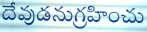
దేవుడనుగ్రహించు